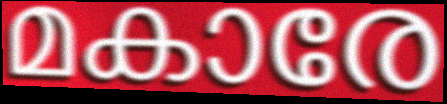
മകാരേ